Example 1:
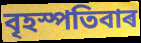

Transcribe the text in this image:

বৃহস্পতিবাৰ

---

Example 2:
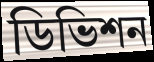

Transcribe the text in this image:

ডিভিশন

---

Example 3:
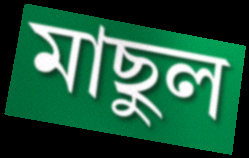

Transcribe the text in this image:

মাছুল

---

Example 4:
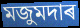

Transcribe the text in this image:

মজুমদাৰ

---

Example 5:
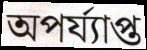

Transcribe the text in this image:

অপৰ্য্যাপ্ত